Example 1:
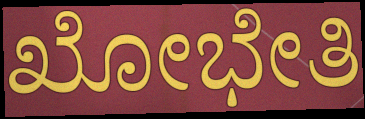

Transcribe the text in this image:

ಖೋಭೇತಿ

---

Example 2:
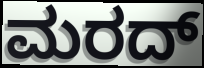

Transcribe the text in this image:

ಮರದ್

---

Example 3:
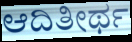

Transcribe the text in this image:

ಆದಿತೀರ್ಥ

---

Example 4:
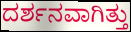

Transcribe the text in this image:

ದರ್ಶನವಾಗಿತ್ತು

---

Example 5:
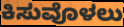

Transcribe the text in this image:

ಕಿಸುವೊಳಲು